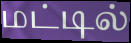
மட்டில்